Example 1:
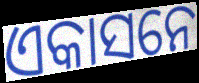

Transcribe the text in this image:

ଏକାସନେ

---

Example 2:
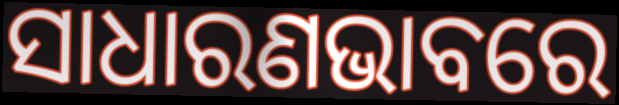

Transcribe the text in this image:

ସାଧାରଣଭାବରେ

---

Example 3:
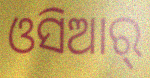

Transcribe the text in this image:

ଓସିଆର୍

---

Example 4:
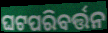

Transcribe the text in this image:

ଘଟପରିବର୍ତ୍ତନ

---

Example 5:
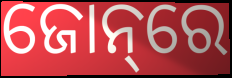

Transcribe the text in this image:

ଜୋନ୍‌ରେ